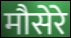
मौसेरे